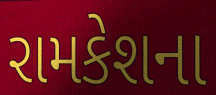
રામકેશના